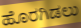
ಹೊರಗಿಡಲು